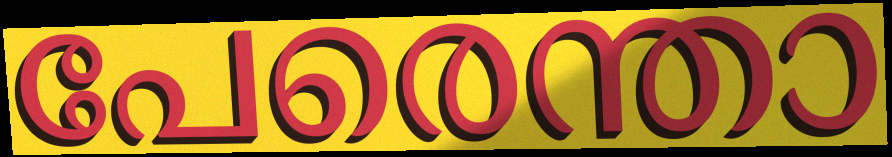
പേരെന്താ